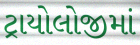
ટ્રાયોલોજીમાં